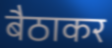
बैठाकर